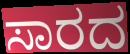
ಸಾರದ